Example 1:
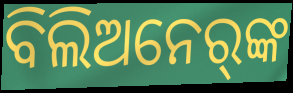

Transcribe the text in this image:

ବିଲିଅନେର୍‌ଙ୍କ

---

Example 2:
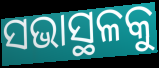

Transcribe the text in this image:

ସଭାସ୍ଥଳକୁ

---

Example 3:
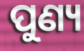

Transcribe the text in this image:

ପୁଣ୍ୟ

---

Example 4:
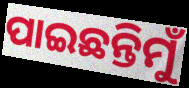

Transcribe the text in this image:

ପାଇଛନ୍ତିମୁଁ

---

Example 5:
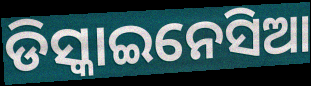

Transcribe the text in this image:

ଡିସ୍କାଇନେସିଆ